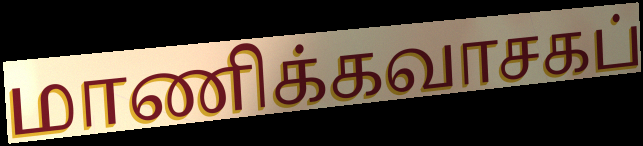
மாணிக்கவாசகப்